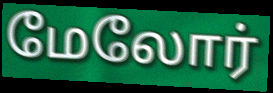
மேலோர்